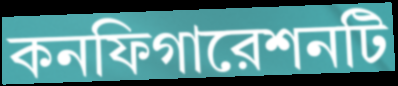
কনফিগারেশনটি